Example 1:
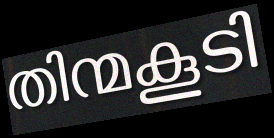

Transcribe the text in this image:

തിന്മകൂടി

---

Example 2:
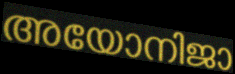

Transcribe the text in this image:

അയോനിജാ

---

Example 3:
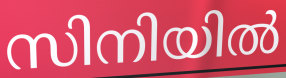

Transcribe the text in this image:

സിനിയിൽ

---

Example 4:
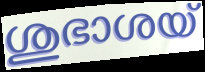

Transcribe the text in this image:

ശുഭാശയ്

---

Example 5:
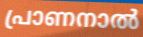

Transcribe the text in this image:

പ്രാണനാൽ